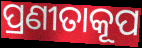
ପ୍ରଣୀତାକୂପ